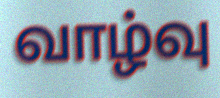
வாழ்வு